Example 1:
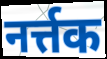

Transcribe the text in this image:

नर्त्तक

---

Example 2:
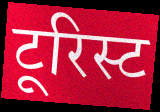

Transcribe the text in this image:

टूरिस्ट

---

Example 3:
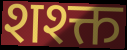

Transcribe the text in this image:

शश्क्त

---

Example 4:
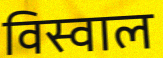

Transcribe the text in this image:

विस्वाल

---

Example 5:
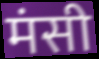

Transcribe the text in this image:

मंसी